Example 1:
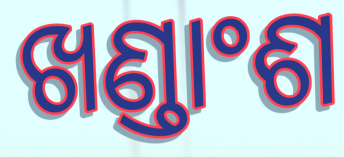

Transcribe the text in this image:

ଖଣ୍ଡାଂଶ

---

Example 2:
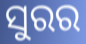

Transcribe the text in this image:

ସୁରର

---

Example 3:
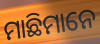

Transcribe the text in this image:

ମାଛିମାନେ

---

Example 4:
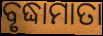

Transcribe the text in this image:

ବୃଦ୍ଧାମାତା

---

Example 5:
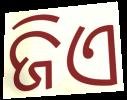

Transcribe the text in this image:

ଜିଏ